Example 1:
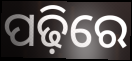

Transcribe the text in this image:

ପଢ଼ିରେ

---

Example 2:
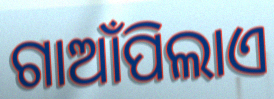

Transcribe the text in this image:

ଗାଆଁପିଲାଏ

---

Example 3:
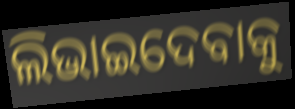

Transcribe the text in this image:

ଲିଭାଇଦେବାକୁ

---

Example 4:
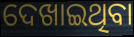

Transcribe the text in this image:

ଦେଖାଇଥିବା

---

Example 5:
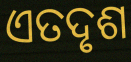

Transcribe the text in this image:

ଏତଦୃଶ